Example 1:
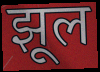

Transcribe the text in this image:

झूल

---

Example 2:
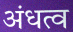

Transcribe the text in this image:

अंधत्व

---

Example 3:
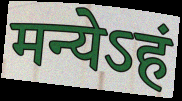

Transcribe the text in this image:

मन्येऽहं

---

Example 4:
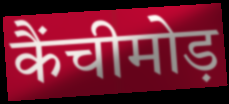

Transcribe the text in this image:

कैंचीमोड़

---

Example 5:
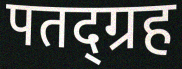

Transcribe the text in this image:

पतद्ग्रह